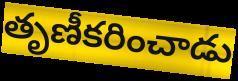
తృణీకరించాడు